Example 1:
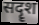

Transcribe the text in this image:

सदॄश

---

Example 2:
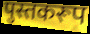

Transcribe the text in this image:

पुस्तकरूप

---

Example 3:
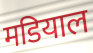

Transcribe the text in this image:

मडियाल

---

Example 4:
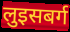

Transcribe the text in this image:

लुइसबर्ग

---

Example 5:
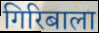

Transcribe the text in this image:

गिरिबाला